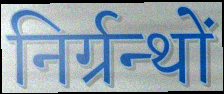
निर्ग्रन्थों